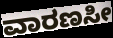
ವಾರಣಸೀ